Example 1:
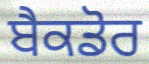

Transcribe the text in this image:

ਬੈਕਡੋਰ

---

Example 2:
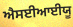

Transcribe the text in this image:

ਐਸਈਆਈਯੂ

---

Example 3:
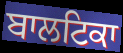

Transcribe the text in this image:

ਬਾਲਟਿਕਾ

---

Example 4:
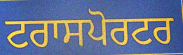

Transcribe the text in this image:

ਟਰਾਸਪੋਰਟਰ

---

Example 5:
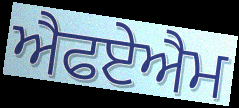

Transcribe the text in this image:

ਐਫਏਐਮ